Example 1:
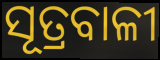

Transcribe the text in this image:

ସୂତ୍ରବାଳୀ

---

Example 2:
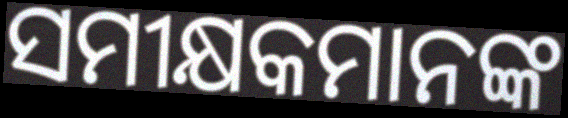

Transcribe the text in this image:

ସମୀକ୍ଷକମାନଙ୍କ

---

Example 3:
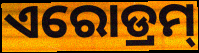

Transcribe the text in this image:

ଏରୋଡ୍ରମ୍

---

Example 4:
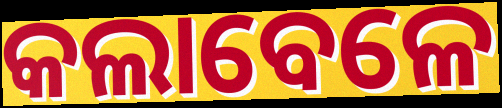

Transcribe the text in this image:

କଲାବେଳେ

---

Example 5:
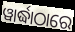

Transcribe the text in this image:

ୱାର୍ଦ୍ଧାଠାରେ